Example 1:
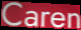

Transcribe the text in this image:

Caren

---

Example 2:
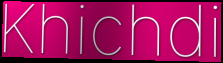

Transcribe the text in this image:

Khichdi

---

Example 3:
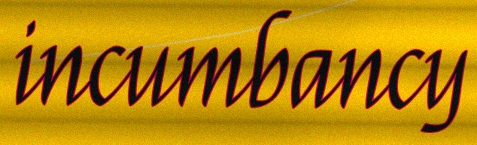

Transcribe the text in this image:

incumbancy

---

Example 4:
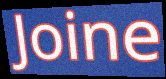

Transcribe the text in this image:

Joine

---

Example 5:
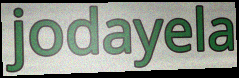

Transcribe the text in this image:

jodayela